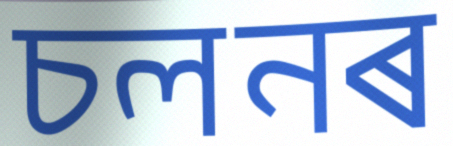
চলনৰ